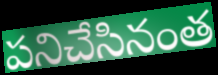
పనిచేసినంత